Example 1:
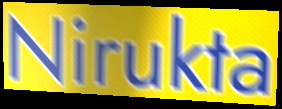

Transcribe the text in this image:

Nirukta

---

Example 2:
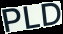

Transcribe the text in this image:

PLD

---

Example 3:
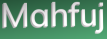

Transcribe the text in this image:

Mahfuj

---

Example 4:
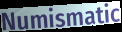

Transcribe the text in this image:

Numismatic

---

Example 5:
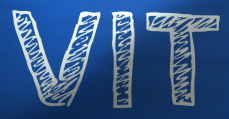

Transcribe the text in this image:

VIT